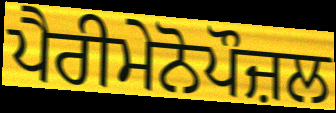
ਪੈਰੀਮੇਨੋਪੌਜ਼ਲ